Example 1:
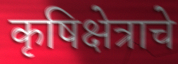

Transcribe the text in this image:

कृषिक्षेत्राचे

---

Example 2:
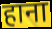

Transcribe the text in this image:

हाना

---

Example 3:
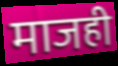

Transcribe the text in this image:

माजही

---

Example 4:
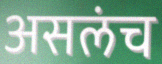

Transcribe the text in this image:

असलंच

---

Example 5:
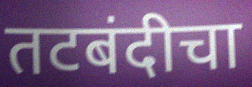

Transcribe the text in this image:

तटबंदीचा